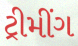
ટ્રીમીંગ